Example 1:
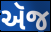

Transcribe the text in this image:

ઍજ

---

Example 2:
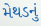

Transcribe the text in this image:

મેથડનું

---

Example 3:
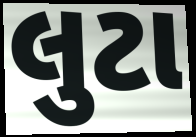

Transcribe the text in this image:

લુટા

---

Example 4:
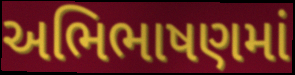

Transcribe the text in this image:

અભિભાષણમાં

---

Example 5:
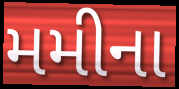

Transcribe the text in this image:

મમીના